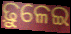
ଢ଼ୁଳେଇ